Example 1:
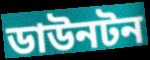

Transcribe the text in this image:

ডাউনটন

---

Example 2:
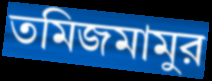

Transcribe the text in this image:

তমিজমামুর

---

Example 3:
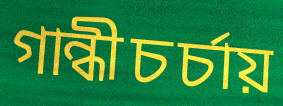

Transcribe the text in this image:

গান্ধীচর্চায়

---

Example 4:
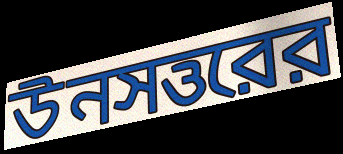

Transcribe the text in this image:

উনসত্তরের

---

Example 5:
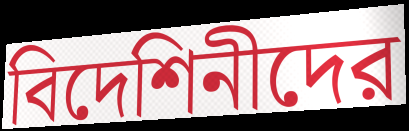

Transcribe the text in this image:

বিদেশিনীদের